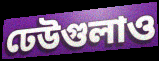
ঢেউগুলাও